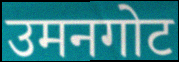
उमनगोट